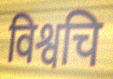
विश्वचि